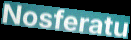
Nosferatu